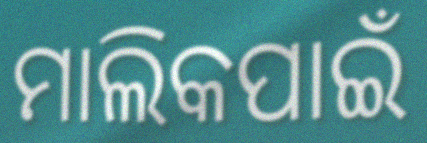
ମାଲିକପାଇଁ